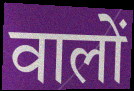
वालों